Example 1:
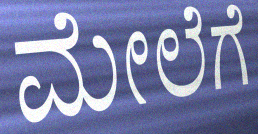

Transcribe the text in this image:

ಮೇಲೆಗೆ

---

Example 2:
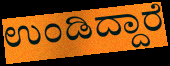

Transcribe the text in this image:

ಉಂಡಿದ್ದಾರೆ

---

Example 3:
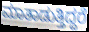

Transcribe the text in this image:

ಮಾತಾಡುತ್ತಿದ್ದರೆ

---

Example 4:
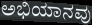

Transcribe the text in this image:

ಅಭಿಯಾನವು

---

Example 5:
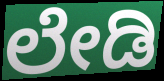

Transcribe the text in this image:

ಲೇಡಿ